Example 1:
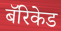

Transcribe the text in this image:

बॅरिकेड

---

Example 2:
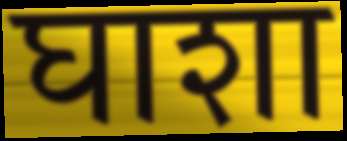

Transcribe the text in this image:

घाशा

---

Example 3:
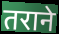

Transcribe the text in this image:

तराने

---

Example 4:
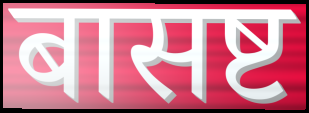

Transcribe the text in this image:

बासष्ट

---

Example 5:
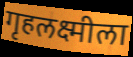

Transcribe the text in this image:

गृहलक्ष्मीला